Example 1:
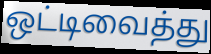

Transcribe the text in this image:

ஒட்டிவைத்து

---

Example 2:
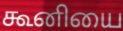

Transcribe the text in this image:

கூனியை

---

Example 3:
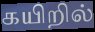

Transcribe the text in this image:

கயிறில்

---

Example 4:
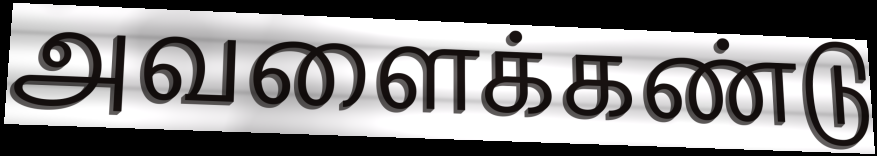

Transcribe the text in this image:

அவளைக்கண்டு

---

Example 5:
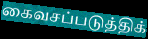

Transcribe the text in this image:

கைவசப்படுத்திக்